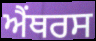
ਐਂਥਰਸ